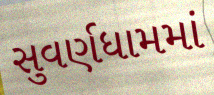
સુવર્ણધામમાં